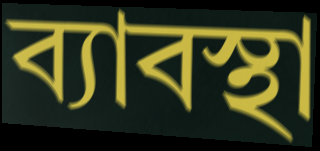
ব্যাবস্থা